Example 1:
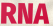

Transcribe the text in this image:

RNA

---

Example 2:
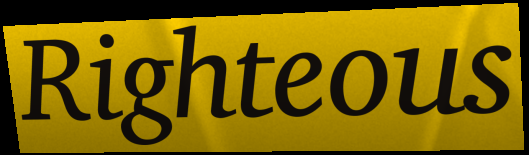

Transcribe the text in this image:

Righteous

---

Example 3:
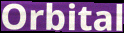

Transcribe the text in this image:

Orbital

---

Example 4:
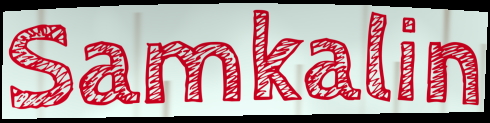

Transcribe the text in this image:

Samkalin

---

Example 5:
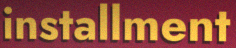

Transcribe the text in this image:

installment